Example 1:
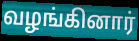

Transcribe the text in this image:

வழங்கினார்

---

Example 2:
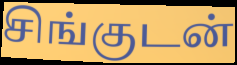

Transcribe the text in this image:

சிங்குடன்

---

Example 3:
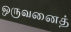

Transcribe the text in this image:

ஒருவனைத்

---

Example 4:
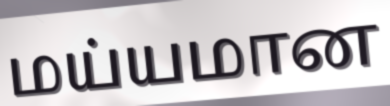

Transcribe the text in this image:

மய்யமான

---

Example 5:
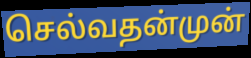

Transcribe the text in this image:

செல்வதன்முன்